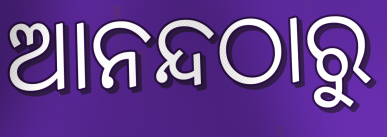
ଆନନ୍ଦଠାରୁ